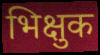
भिक्षुक